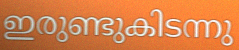
ഇരുണ്ടുകിടന്നു